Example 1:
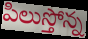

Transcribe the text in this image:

పిలుస్తోన్న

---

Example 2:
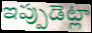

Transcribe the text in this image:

ఇప్పుడెట్లా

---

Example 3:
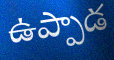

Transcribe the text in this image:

ఉప్పాడ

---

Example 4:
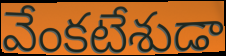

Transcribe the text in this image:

వేంకటేశుడా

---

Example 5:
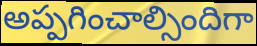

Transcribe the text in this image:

అప్పగించాల్సిందిగా